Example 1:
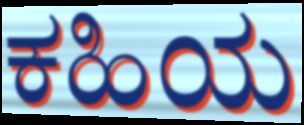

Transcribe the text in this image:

ಕಹಿಯ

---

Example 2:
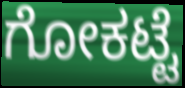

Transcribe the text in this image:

ಗೋಕಟ್ಟೆ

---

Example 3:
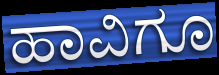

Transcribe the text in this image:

ಹಾವಿಗೂ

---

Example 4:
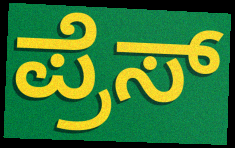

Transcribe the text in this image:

ಪ್ರೆಸ್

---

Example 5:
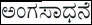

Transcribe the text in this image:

ಅಂಗಸಾಧನೆ